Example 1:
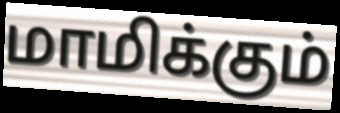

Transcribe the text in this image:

மாமிக்கும்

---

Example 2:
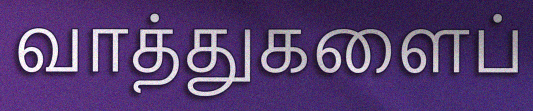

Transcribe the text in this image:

வாத்துகளைப்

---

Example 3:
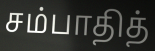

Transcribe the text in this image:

சம்பாதித்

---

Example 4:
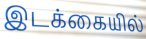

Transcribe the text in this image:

இடக்கையில்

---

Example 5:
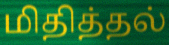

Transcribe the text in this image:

மிதித்தல்